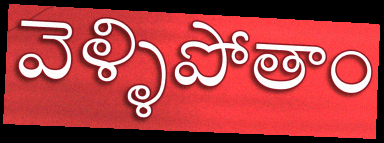
వెళ్ళిపోతాం